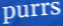
purrs